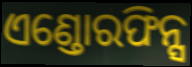
ଏଣ୍ଡୋରଫିନ୍ସ